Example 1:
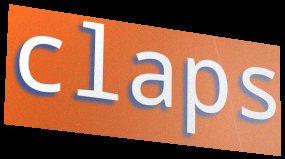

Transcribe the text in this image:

claps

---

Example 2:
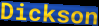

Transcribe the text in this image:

Dickson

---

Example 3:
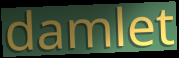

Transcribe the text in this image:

damlet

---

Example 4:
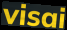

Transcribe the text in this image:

visai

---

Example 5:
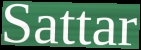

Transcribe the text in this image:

Sattar